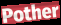
Pother